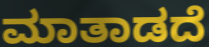
ಮಾತಾಡದೆ